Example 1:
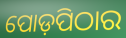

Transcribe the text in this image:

ପୋଡ଼ପିଠାର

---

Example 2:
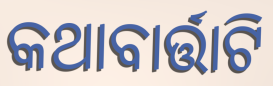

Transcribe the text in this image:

କଥାବାର୍ତ୍ତାଟି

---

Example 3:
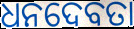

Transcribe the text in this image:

ଧନଦେବତା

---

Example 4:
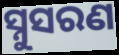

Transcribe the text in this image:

ସ୍ନୁସରଣ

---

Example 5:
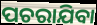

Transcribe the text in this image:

ପଚରାଯିବା